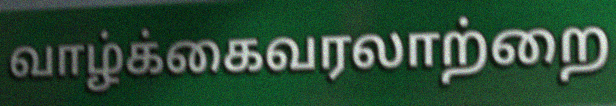
வாழ்க்கைவரலாற்றை